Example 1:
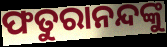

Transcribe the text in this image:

ଫତୁରାନନ୍ଦଙ୍କୁ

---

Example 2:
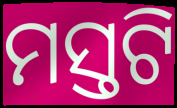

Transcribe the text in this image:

ମସ୍ତଟି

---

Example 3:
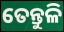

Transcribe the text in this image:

ତେନ୍ତୁଳି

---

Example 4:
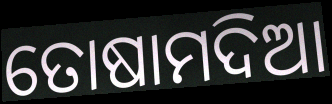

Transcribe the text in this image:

ତୋଷାମଦିଆ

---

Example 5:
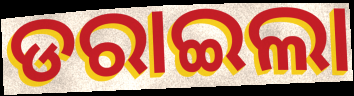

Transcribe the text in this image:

ଡରାଇଲା